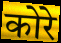
कोरे